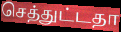
செத்துட்டதா